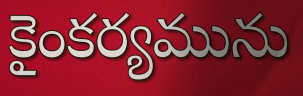
కైంకర్యమును